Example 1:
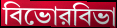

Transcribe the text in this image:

বিভোরবিভা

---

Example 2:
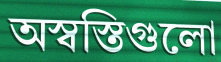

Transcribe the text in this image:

অস্বস্তিগুলো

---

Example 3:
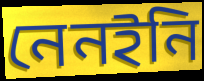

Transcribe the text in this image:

নেনইনি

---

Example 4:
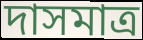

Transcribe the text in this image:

দাসমাত্র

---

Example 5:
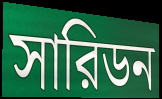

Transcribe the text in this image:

সারিডন